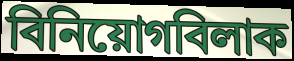
বিনিয়োগবিলাক